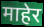
माहेर